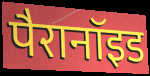
पैरानॉइड